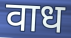
वाध